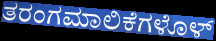
ತರಂಗಮಾಲಿಕೆಗಳೊಳ್